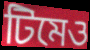
টিমেও